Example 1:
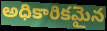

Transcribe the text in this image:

అధికారికమైన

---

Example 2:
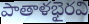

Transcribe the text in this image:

పాతాళభైరవి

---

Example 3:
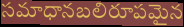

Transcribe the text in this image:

సమాధానబలిరూపమైన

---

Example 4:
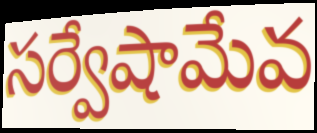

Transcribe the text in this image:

సర్వేషామేవ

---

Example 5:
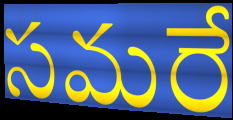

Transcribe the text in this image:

సమరే